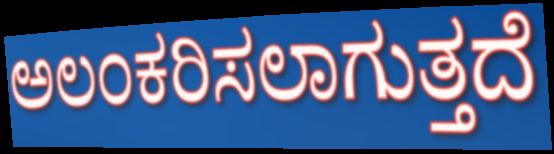
ಅಲಂಕರಿಸಲಾಗುತ್ತದೆ